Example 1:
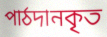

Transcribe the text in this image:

পাঠদানকৃত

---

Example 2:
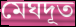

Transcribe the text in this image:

মেঘদূত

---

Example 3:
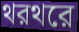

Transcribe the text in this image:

থরথরে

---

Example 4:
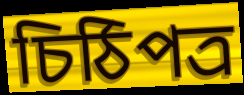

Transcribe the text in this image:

চিঠিপত্র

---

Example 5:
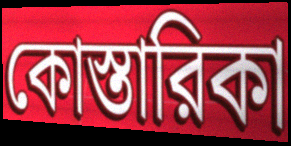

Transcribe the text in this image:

কোস্তারিকা